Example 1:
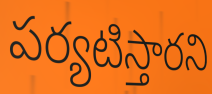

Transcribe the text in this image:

పర్యటిస్తారని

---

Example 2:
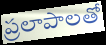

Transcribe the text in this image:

ప్రలాపాలతో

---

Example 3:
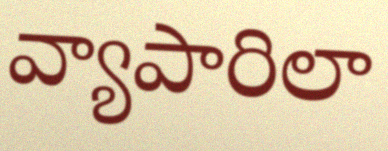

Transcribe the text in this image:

వ్యాపారిలా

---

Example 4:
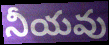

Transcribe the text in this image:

నీయవు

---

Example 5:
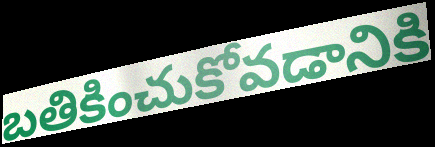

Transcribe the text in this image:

బతికించుకోవడానికి